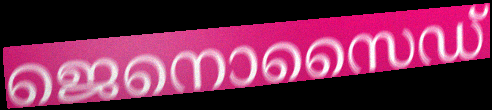
ജെനൊസൈഡ്